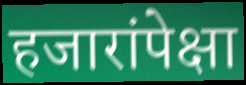
हजारांपेक्षा